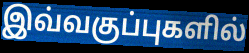
இவ்வகுப்புகளில்